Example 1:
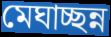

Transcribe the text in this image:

মেঘাচ্ছন্ন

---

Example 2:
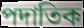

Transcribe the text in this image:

পদাতিক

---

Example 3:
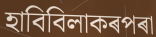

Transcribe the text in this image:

হাবিবিলাকৰপৰা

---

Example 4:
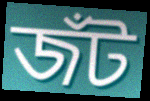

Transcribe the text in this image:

জঁট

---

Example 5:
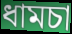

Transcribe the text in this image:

ধামচা